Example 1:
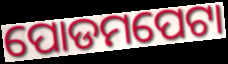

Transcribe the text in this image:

ପୋଡମପେଟା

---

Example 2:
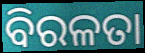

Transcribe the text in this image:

ବିରଳତା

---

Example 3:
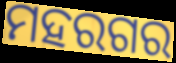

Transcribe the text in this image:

ମହରଗର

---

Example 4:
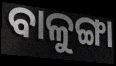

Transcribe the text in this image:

ବାଳୁଙ୍ଗା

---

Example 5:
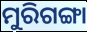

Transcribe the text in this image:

ମୁରିଗଙ୍ଗା